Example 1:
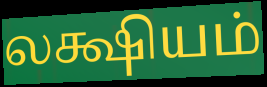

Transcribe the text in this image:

லக்ஷியம்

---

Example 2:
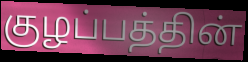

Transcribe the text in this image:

குழப்பத்தின்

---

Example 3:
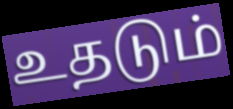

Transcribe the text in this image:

உதடும்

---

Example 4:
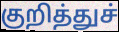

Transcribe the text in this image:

குறித்துச்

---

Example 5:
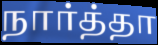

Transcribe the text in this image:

நார்த்தா